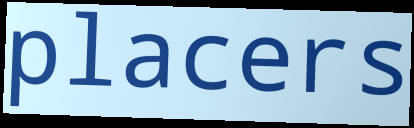
placers